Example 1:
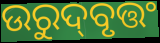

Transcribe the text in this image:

ଉରୁଦ୍‌ବୃତ୍ତଂ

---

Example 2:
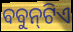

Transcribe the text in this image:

ବବୁନ୍‍ଟିଏ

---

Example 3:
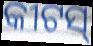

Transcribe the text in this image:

କୀଟସ୍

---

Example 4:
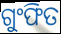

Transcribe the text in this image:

ଗୁଂଫିତ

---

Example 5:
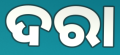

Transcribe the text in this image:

ଦରା